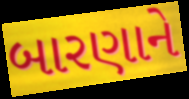
બારણાને